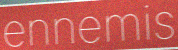
ennemis